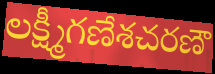
లక్ష్మీగణేశచరణౌ